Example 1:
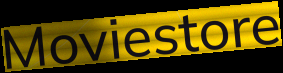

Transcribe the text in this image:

Moviestore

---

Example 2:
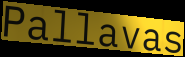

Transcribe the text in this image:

Pallavas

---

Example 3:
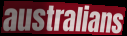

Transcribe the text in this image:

australians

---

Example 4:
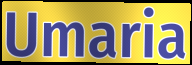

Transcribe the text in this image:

Umaria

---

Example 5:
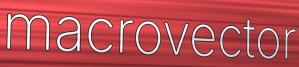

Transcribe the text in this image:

macrovector